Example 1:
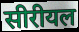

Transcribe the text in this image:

सीरीयल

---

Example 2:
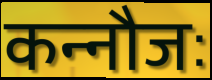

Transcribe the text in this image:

कन्नौजः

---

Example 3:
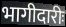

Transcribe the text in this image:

भागीदारीः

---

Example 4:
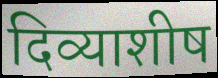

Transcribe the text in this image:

दिव्याशीष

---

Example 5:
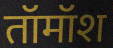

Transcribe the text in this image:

तॉमॉश